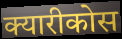
क्यारीकोस